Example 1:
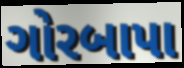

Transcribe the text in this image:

ગોરબાપા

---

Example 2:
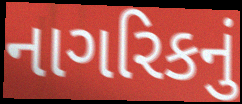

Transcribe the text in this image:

નાગરિકનું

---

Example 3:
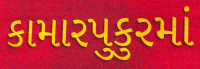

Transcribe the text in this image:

કામારપુકુરમાં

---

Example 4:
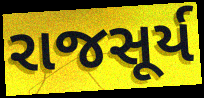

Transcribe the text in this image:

રાજસૂર્ય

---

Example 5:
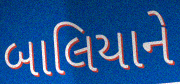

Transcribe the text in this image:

બાલિયાને